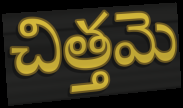
చిత్తమె